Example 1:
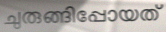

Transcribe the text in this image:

ചുരുങ്ങിപ്പോയത്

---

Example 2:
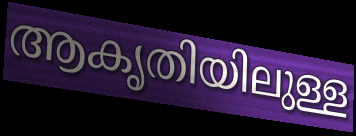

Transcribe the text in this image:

ആകൃതിയിലുള്ള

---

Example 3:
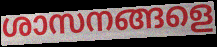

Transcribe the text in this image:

ശാസനങ്ങളെ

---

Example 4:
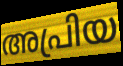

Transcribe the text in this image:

അപ്രിയ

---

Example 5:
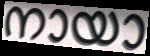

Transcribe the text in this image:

നായാ